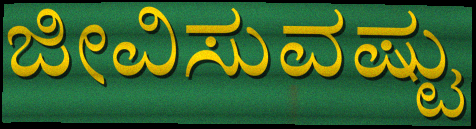
ಜೀವಿಸುವಷ್ಟು